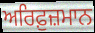
ਅਰਿਫ਼ੁਜ਼ਮਾਨ